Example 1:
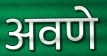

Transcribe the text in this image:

अवणे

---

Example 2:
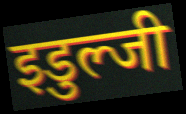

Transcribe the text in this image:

इडुल्जी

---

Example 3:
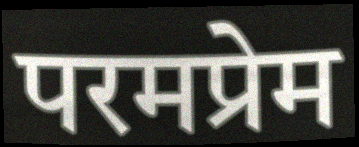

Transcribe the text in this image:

परमप्रेम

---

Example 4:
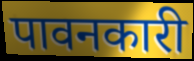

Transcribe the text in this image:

पावनकारी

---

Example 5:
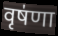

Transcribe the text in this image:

वृष॑णा